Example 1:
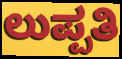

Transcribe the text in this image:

ಲುಪ್ಪತಿ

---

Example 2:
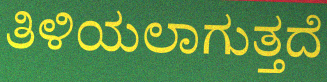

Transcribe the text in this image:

ತಿಳಿಯಲಾಗುತ್ತದೆ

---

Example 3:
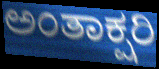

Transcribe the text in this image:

ಅಂತಾಕ್ಷರಿ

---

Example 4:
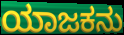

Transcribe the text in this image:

ಯಾಜಕನು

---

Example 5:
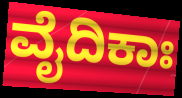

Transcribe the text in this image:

ವೈದಿಕಾಃ